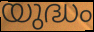
യുദ്ധം